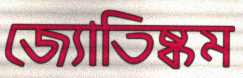
জ্যোতিষ্কম